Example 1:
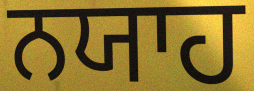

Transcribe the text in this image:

ਨਯਾਹ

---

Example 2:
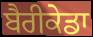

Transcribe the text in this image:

ਬੈਰੀਕੇਡਾ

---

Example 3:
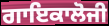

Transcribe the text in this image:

ਗਾਇਕਾਲੋਜੀ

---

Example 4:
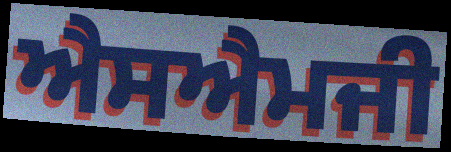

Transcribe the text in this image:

ਐਸਐਮਜੀ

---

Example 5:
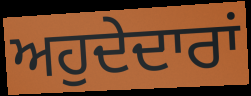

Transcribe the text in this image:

ਅਹੁਦੇਦਾਰਾਂ